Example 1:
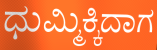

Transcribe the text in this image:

ಧುಮ್ಮಿಕ್ಕಿದಾಗ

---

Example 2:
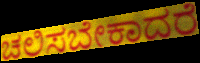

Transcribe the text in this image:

ಚಲಿಸಬೇಕಾದರೆ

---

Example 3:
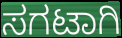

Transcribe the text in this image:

ಸಗಟಾಗಿ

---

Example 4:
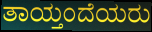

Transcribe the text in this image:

ತಾಯ್ತಂದೆಯರು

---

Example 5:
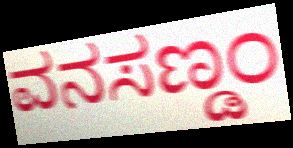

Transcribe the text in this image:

ವನಸಣ್ಡಂ